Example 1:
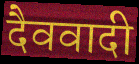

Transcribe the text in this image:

दैववादी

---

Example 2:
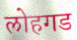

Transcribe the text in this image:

लोहगड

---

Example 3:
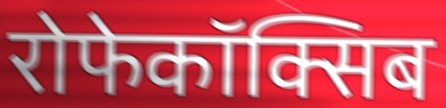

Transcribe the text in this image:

रोफेकॉक्सिब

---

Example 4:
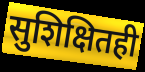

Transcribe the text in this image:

सुशिक्षितही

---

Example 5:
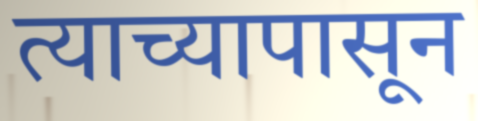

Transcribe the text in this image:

त्याच्यापासून